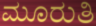
ಮೂರುತಿ